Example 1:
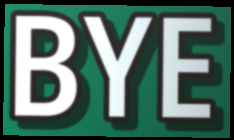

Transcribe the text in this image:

BYE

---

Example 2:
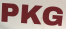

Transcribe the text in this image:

PKG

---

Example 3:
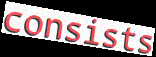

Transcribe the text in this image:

consists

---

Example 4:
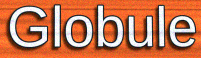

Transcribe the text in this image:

Globule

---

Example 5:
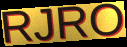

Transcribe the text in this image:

RJRO